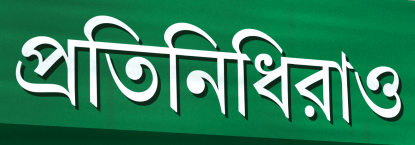
প্রতিনিধিরাও